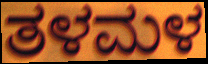
ತಳಮಳ